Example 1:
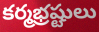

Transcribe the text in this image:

కర్మభ్రష్టులు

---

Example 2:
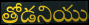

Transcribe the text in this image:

తోడనియు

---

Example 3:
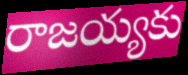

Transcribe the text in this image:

రాజయ్యకు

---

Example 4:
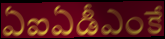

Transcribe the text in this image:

ఏఐఏడీఎంకే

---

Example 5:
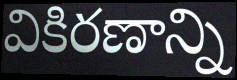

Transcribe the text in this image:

వికిరణాన్ని